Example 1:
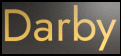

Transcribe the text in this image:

Darby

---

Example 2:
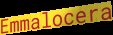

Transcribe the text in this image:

Emmalocera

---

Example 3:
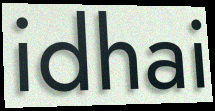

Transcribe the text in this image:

idhai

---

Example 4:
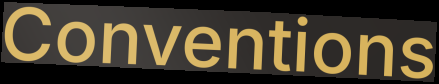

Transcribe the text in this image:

Conventions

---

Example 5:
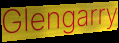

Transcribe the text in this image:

Glengarry